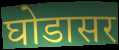
घोडासर